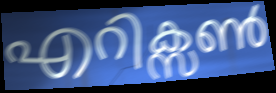
എറിക്സൺ